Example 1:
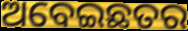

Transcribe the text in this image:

ଅବେଇଛତର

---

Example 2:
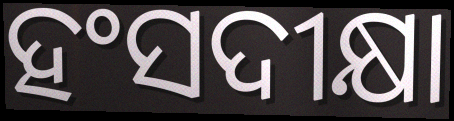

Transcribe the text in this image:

ହଂସଦୀକ୍ଷା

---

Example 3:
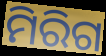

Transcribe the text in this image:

ମିରିଗ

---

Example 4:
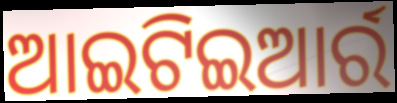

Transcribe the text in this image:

ଆଇଟିଇଆର୍ର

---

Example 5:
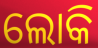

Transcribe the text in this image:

ଲୋକି